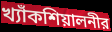
খ্যাঁকশিয়ালনীর